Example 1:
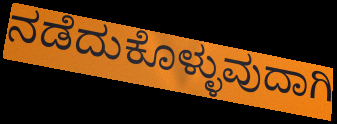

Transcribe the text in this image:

ನಡೆದುಕೊಳ್ಳುವುದಾಗಿ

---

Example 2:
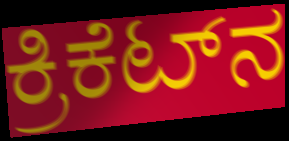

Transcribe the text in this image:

ಕ್ರಿಕೆಟ್‌ನ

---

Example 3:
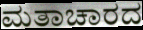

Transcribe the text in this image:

ಮತಾಚಾರದ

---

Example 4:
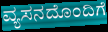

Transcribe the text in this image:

ವ್ಯಸನದೊಂದಿಗೆ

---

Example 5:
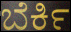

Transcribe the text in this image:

ಬೆರ್ಕಿ